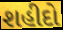
શહીદો